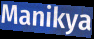
Manikya